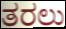
ತರಲು